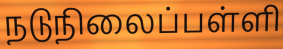
நடுநிலைப்பள்ளி